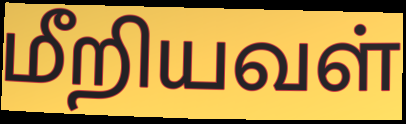
மீறியவள்